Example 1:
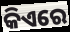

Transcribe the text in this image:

କିଏରେ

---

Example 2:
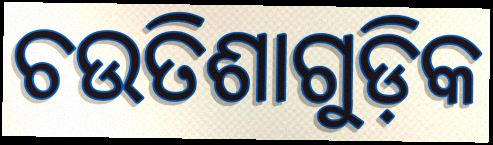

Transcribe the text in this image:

ଚଉତିଶାଗୁଡ଼ିକ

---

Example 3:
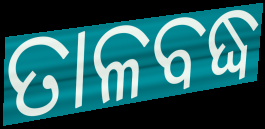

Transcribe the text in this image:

ତାଳବଦ୍ଧ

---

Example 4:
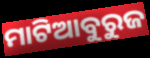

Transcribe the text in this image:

ମାଟିଆବୁରୁଜ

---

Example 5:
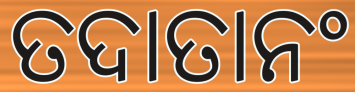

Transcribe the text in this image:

ତଦାତାନଂ